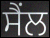
ਸੈਂਲ